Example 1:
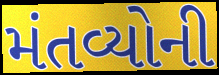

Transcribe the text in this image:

મંતવ્યોની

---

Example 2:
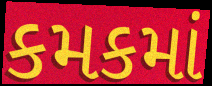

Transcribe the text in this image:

કમકમાં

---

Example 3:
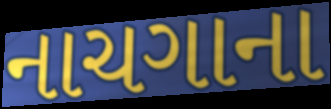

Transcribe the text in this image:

નાચગાના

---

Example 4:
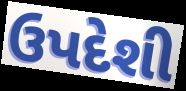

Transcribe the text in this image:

ઉપદેશી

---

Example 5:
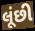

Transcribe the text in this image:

લૂંછી